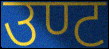
उण्ट